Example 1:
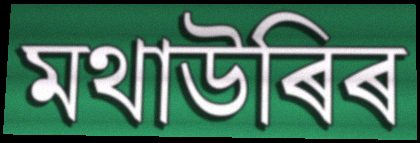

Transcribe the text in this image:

মথাউৰিৰ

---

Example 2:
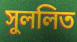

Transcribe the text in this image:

সুললিত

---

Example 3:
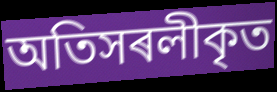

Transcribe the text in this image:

অতিসৰলীকৃত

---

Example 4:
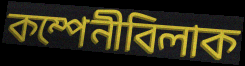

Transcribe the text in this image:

কম্পেনীবিলাক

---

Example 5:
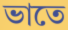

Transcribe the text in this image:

ভাতে